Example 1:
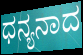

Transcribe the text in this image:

ಧನ್ಯನಾದ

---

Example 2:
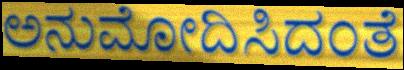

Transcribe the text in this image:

ಅನುಮೋದಿಸಿದಂತೆ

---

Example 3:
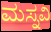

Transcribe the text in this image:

ಮಸ್ನವಿ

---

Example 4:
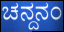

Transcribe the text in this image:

ಚನ್ದನಂ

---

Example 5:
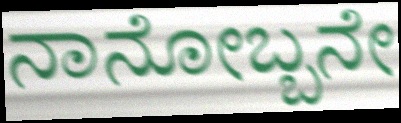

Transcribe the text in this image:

ನಾನೋಬ್ಬನೇ